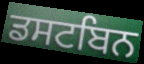
ਡਸਟਬਿਨ